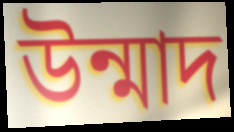
উন্মাদ